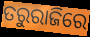
ତରୁରାଜିରେ